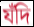
যঁদি